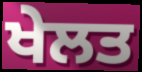
ਖੇਲਤ